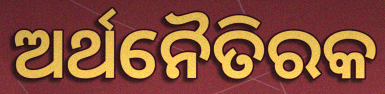
ଅର୍ଥନୈତିରକ